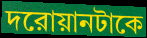
দরোয়ানটাকে